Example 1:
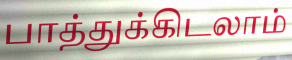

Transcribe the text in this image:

பாத்துக்கிடலாம்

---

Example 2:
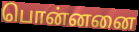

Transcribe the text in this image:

பொன்னனை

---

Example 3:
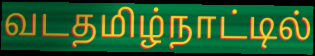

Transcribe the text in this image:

வடதமிழ்நாட்டில்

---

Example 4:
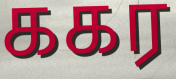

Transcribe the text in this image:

ககர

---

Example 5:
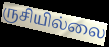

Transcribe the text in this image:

ருசியில்லை